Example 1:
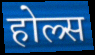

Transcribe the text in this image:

होल्स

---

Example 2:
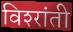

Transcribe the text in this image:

विश्रांती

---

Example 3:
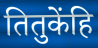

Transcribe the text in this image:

तितुकेंहि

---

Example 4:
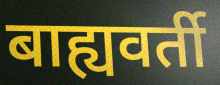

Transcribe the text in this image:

बाह्यवर्ती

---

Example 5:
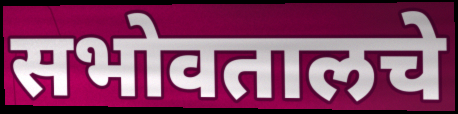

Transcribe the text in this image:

सभोवतालचे